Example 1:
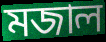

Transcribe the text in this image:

মজাল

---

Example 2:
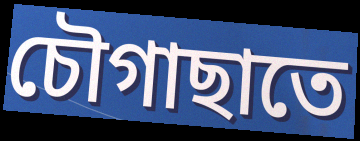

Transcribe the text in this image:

চৌগাছাতে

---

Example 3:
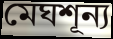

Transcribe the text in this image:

মেঘশূন্য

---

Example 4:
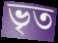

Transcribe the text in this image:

ভৃত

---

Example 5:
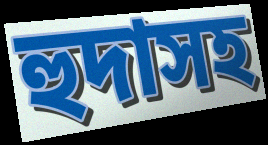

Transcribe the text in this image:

হুদাসহ